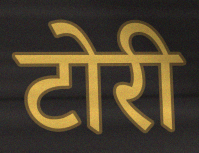
टोरी